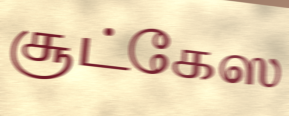
சூட்கேஸ